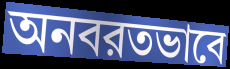
অনবরতভাবে